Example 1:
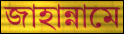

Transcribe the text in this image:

জাহান্নামে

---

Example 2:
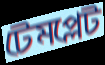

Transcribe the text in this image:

টেমপ্লেট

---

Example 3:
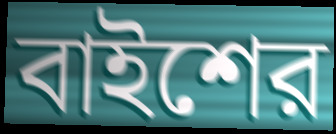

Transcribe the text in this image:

বাইশের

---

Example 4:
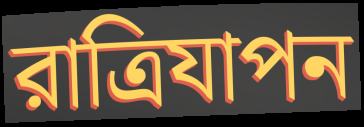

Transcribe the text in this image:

রাত্রিযাপন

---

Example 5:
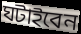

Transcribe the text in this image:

ঘটাইবেন